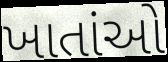
ખાતાંઓ